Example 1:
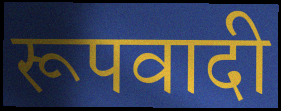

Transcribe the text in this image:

रूपवादी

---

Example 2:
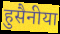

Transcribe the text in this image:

हुसैनीया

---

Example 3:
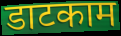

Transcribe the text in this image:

डाटकाम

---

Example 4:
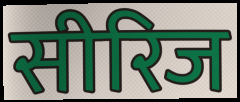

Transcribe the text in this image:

सीरिज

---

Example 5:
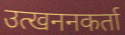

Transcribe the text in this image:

उत्खननकर्ता